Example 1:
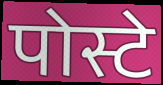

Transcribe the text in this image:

पोस्टे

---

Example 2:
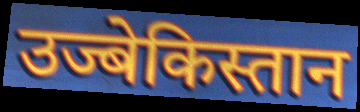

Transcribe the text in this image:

उज्बेकिस्तान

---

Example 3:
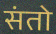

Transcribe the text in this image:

संतो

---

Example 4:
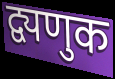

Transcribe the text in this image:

द्व्यणुक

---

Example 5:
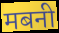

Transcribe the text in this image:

मबनी